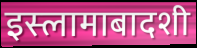
इस्लामाबादशी